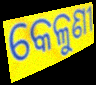
କେଳୁଣୀ